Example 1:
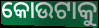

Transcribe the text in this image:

କୋଉଟାକୁ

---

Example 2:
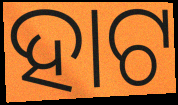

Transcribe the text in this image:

ହାଟ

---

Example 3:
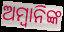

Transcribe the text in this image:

ଅମ୍ବାନିଙ୍କ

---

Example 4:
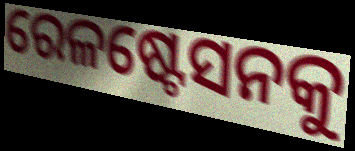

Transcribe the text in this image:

ରେଳଷ୍ଟେସନକୁ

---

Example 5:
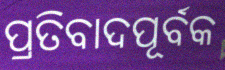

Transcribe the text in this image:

ପ୍ରତିବାଦପୂର୍ବକ